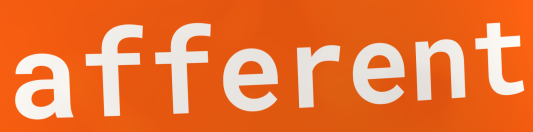
afferent